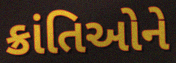
ક્રાંતિઓને